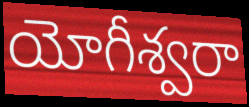
యోగీశ్వరా